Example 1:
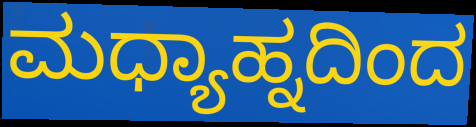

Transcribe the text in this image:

ಮಧ್ಯಾಹ್ನದಿಂದ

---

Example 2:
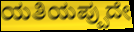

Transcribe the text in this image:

ಯತಿಯಪ್ಪುದೇ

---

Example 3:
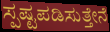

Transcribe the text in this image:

ಸ್ಪಷ್ಟಪಡಿಸುತ್ತೇನೆ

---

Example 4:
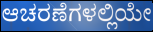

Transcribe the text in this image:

ಆಚರಣೆಗಳಲ್ಲಿಯೇ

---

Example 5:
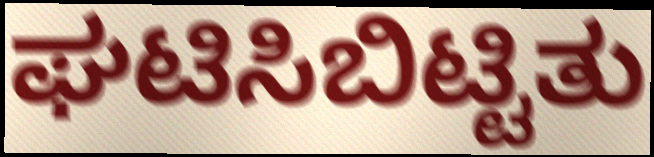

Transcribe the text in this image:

ಘಟಿಸಿಬಿಟ್ಟಿತು